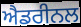
ਐਡਰੀਨਲ